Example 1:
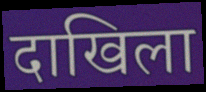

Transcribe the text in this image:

दाखिला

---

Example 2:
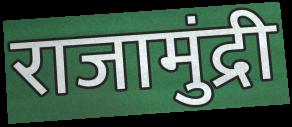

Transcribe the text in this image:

राजामुंद्री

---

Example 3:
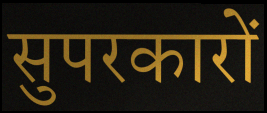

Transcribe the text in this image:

सुपरकारों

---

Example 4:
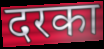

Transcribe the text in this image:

दरका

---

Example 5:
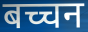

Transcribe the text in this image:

बच्चन